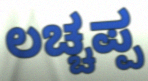
ಲಚ್ಚಪ್ಪ